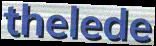
thelede